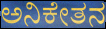
ಅನಿಕೇತನ